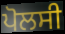
ਪੋਲਸੀ